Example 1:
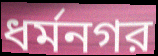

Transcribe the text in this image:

ধর্মনগর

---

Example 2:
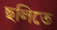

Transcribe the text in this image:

ছলিতে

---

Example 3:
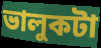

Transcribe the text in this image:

ভালুকটা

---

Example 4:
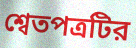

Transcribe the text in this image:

শ্বেতপত্রটির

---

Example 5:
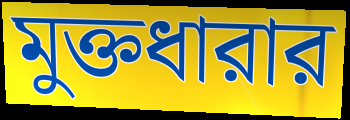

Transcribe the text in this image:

মুক্তধারার